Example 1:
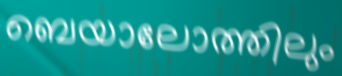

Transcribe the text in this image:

ബെയാലോത്തിലും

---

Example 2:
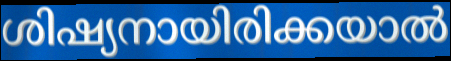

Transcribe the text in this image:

ശിഷ്യനായിരിക്കയാൽ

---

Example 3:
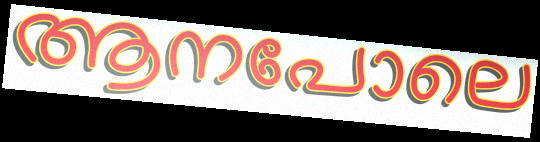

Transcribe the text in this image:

ആനപോലെ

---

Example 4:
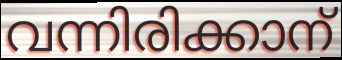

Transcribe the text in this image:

വന്നിരിക്കാന്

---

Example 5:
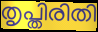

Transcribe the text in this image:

തൃപ്തിരിതി